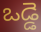
ఒడ్డె